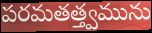
పరమతత్త్వమును